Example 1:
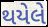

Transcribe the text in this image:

થયેલે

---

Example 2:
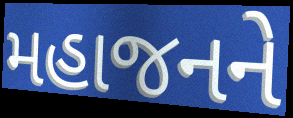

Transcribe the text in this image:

મહાજનને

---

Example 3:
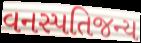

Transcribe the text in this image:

વનસ્પતિજન્ય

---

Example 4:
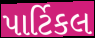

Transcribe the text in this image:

પાર્ટિકલ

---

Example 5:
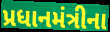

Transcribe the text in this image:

પ્રધાનમંત્રીના